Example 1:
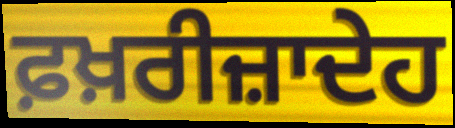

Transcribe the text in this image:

ਫ਼ਖ਼ਰੀਜ਼ਾਦੇਹ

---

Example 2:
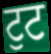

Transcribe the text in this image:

ਟੁਟ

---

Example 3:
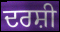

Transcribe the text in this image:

ਦਰਸ਼ੀ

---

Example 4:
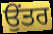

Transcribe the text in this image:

ਉਂਤਰ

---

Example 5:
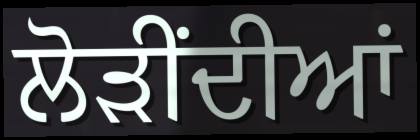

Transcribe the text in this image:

ਲੋੜੀਂਦੀਆਂ